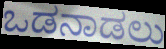
ಒಡನಾಡಲು